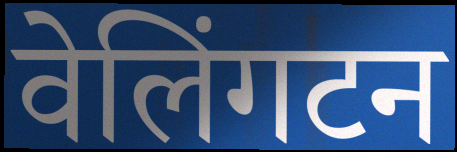
वेलिंगटन